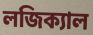
লজিক্যাল